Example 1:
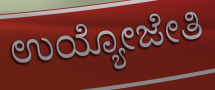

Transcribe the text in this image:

ಉಯ್ಯೋಜೇತಿ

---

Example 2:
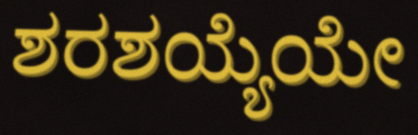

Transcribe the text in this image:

ಶರಶಯ್ಯೆಯೇ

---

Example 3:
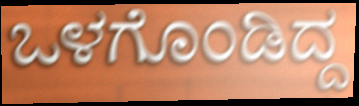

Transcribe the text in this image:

ಒಳಗೊಂಡಿದ್ದ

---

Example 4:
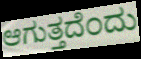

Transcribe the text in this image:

ಆಗುತ್ತದೆಂದು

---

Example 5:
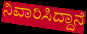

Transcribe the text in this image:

ನಿವಾರಿಸಿದ್ದಾನೆ